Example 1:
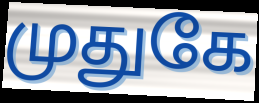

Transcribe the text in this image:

முதுகே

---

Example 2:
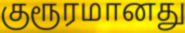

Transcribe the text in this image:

குரூரமானது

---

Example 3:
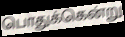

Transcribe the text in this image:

பொதுக்கென்று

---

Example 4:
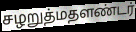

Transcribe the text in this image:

சழறுத்மதளண்டர்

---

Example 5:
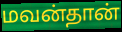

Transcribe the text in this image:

மவன்தான்